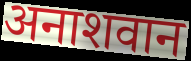
अनाशवान